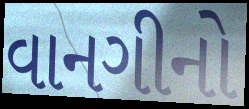
વાનગીનો